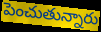
పెంచుతున్నారు